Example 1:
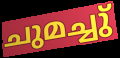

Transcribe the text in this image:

ചുമച്ചു്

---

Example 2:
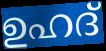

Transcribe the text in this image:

ഉഹദ്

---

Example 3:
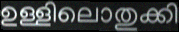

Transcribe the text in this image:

ഉള്ളിലൊതുക്കി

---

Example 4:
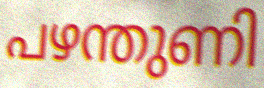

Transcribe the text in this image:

പഴന്തുണി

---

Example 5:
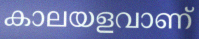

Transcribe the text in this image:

കാലയളവാണ്